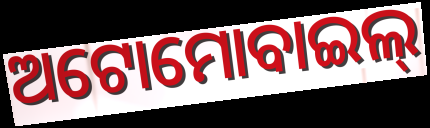
ଅଟୋମୋବାଇଲ୍